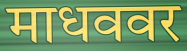
माधववर